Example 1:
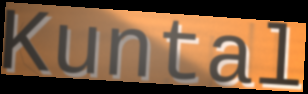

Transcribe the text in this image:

Kuntal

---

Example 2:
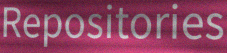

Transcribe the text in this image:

Repositories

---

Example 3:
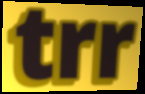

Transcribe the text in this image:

trr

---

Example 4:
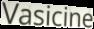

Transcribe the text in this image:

Vasicine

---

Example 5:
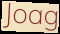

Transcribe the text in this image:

Joag